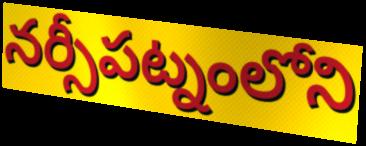
నర్సీపట్నంలోని